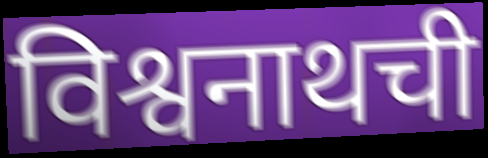
विश्वनाथची